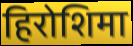
हिरोशिमा